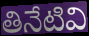
తినేటివి